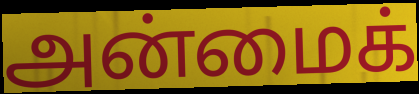
அன்மைக்